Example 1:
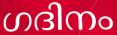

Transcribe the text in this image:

ഗദിനം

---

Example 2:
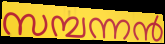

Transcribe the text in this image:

സമ്പന്നൻ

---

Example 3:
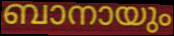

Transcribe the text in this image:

ബാനായും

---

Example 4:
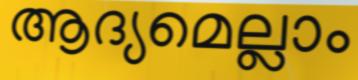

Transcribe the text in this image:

ആദ്യമെല്ലാം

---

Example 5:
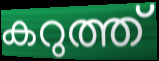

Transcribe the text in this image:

കറുത്ത്